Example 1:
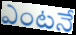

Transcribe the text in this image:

ఎంటనే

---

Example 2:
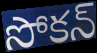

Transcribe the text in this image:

సోకన్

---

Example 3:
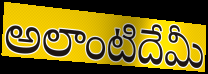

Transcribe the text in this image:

అలాంటిదేమీ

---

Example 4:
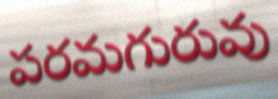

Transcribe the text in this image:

పరమగురువు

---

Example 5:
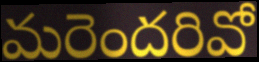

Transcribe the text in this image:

మరెందరివో